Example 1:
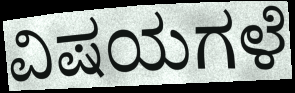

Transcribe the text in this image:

ವಿಷಯಗಳೆ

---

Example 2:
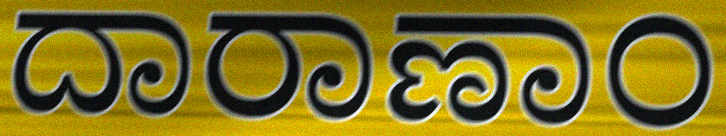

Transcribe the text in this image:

ದಾರಾಣಾಂ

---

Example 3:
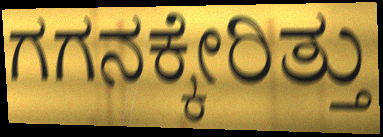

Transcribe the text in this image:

ಗಗನಕ್ಕೇರಿತ್ತು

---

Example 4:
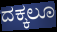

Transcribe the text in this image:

ದಕ್ಕಲೂ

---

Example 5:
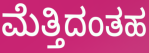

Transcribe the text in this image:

ಮೆತ್ತಿದಂತಹ